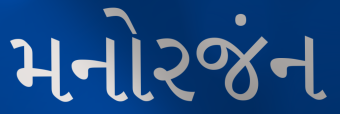
મનોરજંન